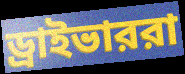
ড্রাইভাররা